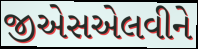
જીએસએલવીને